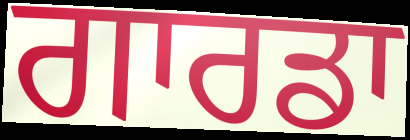
ਗਾਰਡਾ